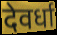
देवर्धा